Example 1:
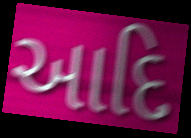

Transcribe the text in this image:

આદિ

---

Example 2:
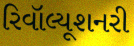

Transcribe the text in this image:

રિવૉલ્યૂશનરી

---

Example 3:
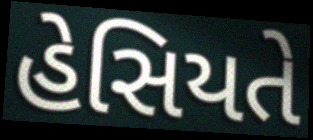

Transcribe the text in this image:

હેસિયતે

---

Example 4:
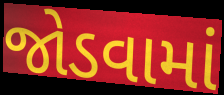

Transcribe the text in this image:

જોડવામાં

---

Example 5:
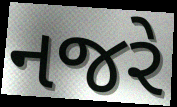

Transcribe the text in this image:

નજરે